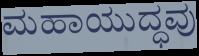
ಮಹಾಯುದ್ಧವು